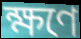
ক্ষণে